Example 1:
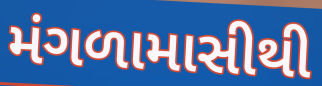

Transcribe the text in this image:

મંગળામાસીથી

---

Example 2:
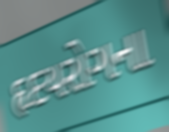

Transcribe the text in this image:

હૃદયરોગના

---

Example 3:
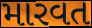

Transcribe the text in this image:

મારવત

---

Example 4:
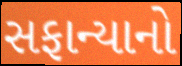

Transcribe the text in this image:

સફાન્યાનો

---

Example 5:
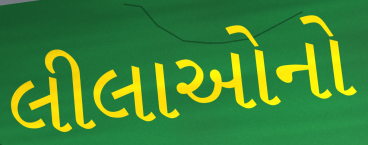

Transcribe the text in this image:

લીલાઓનો